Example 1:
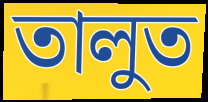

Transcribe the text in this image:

তালুত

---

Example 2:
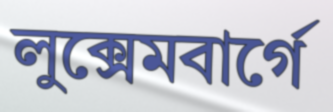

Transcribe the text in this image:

লুক্সেমবার্গে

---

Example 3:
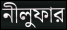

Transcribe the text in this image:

নীলুফার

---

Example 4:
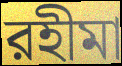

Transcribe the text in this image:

রহীমা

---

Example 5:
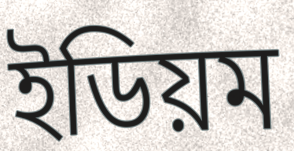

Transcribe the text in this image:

ইডিয়ম